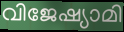
വിജേഷ്യാമി